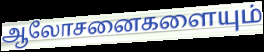
ஆலோசனைகளையும்